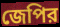
জেপির